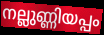
നല്ലുണ്ണിയപ്പം